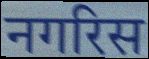
नगरिस